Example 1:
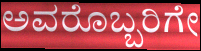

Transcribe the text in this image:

ಅವರೊಬ್ಬರಿಗೇ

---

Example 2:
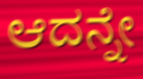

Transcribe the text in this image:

ಆದನ್ನೇ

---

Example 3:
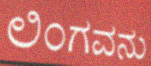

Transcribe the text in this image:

ಲಿಂಗವನು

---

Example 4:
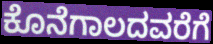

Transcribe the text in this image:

ಕೊನೆಗಾಲದವರೆಗೆ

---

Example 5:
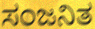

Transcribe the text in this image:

ಸಂಜನಿತ